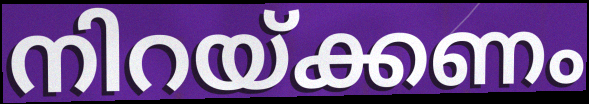
നിറയ്ക്കണം